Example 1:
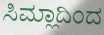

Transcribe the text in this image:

ಸಿಮ್ಲಾದಿಂದ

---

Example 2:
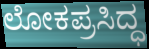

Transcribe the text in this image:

ಲೋಕಪ್ರಸಿದ್ಧ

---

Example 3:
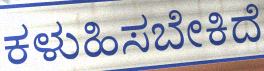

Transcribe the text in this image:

ಕಳುಹಿಸಬೇಕಿದೆ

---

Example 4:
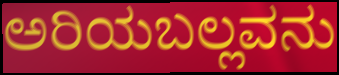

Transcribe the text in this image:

ಅರಿಯಬಲ್ಲವನು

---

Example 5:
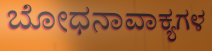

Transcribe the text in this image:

ಬೋಧನಾವಾಕ್ಯಗಳ